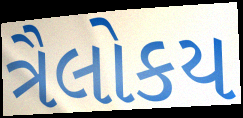
ત્રૈલોકય